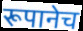
रूपानेच